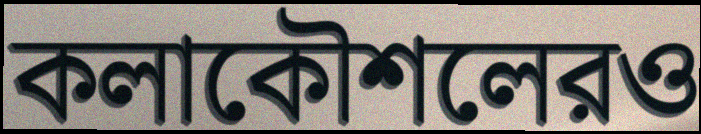
কলাকৌশলেরও